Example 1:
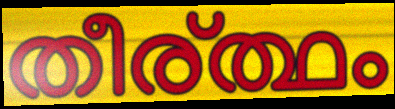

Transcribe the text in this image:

തീര്ത്ഥം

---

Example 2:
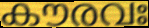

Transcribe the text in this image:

കൗരവഃ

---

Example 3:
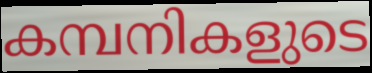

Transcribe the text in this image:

കമ്പനികളുടെ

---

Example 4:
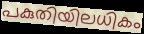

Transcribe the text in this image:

പകുതിയിലധികം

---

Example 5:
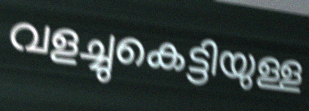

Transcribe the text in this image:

വളച്ചുകെട്ടിയുള്ള